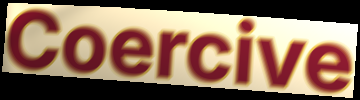
Coercive